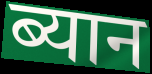
ब्यान